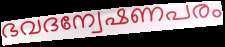
ഭവദന്വേഷണപരം